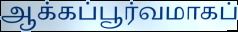
ஆக்கப்பூர்வமாகப்